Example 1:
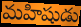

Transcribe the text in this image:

మహిషుడు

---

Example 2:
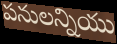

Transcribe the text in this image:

పనులన్నియు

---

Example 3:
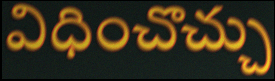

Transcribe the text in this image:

విధించొచ్చు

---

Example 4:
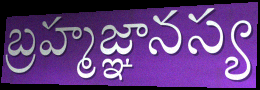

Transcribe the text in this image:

బ్రహ్మజ్ఞానస్య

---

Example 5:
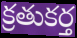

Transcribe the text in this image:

క్రతుకర్త